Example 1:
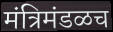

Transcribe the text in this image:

मंत्रिमंडळच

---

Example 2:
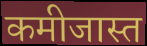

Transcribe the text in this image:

कमीजास्त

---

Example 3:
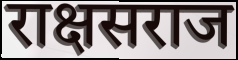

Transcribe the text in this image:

राक्षसराज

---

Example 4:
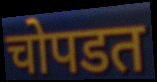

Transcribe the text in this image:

चोपडत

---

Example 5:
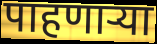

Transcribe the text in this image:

पाहणाऱ्या